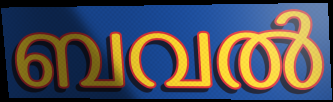
ബവൽ